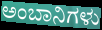
ಅಂಬಾನಿಗಳು